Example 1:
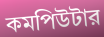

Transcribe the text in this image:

কমপিউটার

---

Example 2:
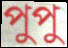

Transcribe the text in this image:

পুপু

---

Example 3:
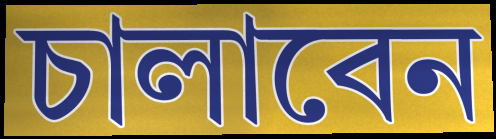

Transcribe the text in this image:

চালাবেন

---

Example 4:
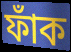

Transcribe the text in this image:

ফাঁক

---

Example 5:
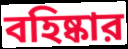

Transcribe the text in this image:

বহিষ্কার